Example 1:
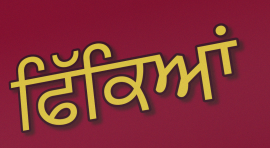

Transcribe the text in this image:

ਫਿੱਕਿਆਂ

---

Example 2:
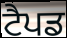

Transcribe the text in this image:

ਟੈਪਡ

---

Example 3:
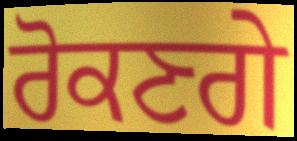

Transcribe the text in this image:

ਰੋਕਣਗੇ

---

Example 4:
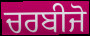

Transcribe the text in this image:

ਚਰਬੀਜੋ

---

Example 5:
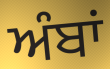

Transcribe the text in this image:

ਅੰਬਾਂ